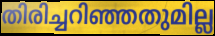
തിരിച്ചറിഞ്ഞതുമില്ല